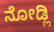
ನೋಡ್ಲಿ